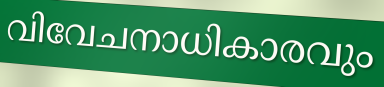
വിവേചനാധികാരവും